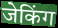
जेकिंग